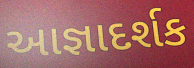
આજ્ઞાદર્શક